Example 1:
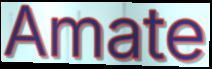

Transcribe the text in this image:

Amate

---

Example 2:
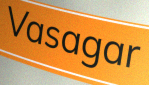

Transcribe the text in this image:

Vasagar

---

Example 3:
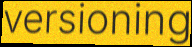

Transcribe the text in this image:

versioning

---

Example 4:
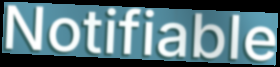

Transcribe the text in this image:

Notifiable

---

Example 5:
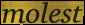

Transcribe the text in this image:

molest